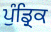
ਪੁੰਡ੍ਰਿਕ